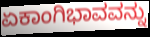
ಏಕಾಂಗಿಭಾವವನ್ನು